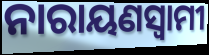
ନାରାୟଣସ୍ଵାମୀ